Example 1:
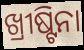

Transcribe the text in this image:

ଖ୍ରୀଷ୍ଟିନା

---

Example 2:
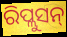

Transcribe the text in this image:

ରିପ୍ଲୁସନ୍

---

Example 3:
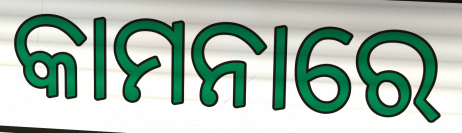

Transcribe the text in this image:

କାମନାରେ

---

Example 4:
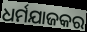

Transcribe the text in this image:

ଧର୍ମଯାଜକର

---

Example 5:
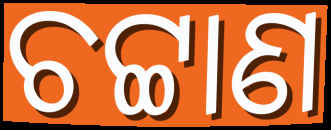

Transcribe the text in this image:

ଚଟ୍ଟାଣ